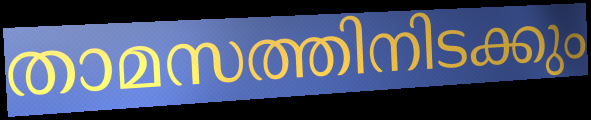
താമസത്തിനിടക്കും